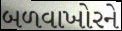
બળવાખોરને